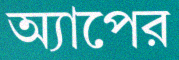
অ্যাপের